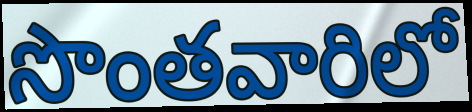
సొంతవారిలో